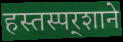
हस्तस्पर्शाने